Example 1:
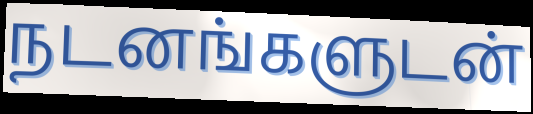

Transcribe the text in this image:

நடனங்களுடன்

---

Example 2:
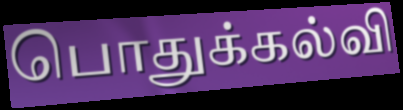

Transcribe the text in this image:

பொதுக்கல்வி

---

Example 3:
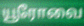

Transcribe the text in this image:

யூரோவை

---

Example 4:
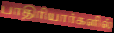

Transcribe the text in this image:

பாதிரியார்களில்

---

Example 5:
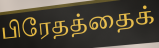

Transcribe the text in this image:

பிரேதத்தைக்